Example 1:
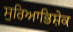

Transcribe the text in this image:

ਸੁਰਿਆਭਿਸ਼ੇਕ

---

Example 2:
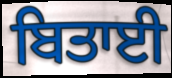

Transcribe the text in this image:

ਬਿਤਾਈ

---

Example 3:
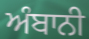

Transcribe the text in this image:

ਅੰਬਾਨੀ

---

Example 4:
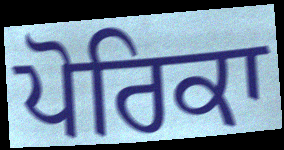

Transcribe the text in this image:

ਪੋਰਿਕਾ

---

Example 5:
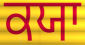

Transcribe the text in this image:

ਕਯਾ